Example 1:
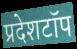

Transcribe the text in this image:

प्रदेशटॉप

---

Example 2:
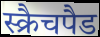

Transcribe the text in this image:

स्क्रैचपैड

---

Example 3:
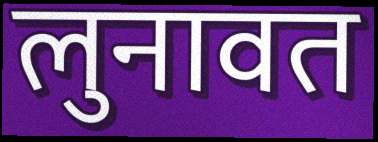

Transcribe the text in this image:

लुनावत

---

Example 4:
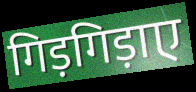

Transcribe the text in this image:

गिड़गिड़ाए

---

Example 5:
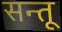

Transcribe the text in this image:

सन्तू